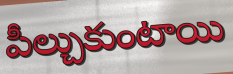
పీల్చుకుంటాయి